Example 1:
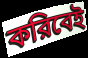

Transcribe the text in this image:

করিবেই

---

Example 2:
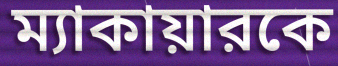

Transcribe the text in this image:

ম্যাকায়ারকে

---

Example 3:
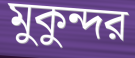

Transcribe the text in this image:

মুকুন্দর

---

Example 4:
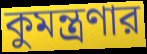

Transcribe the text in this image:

কুমন্ত্রণার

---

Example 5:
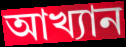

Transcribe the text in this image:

আখ্যান